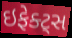
ઇફેક્ટ્સ